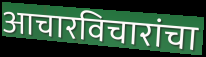
आचारविचारांचा